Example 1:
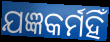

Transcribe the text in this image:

ଯଜ୍ଞକର୍ମହିଁ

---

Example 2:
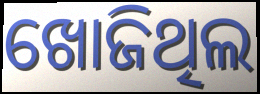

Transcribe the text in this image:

ଖୋଜିଥିଲ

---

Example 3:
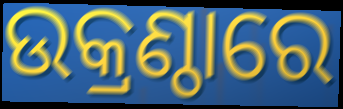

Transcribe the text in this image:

ଉକ୍ରଣ୍ଠାରେ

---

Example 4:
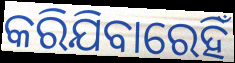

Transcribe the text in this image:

କରିଯିବାରେହିଁ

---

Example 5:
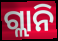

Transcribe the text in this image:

ଗ୍ଲାନି